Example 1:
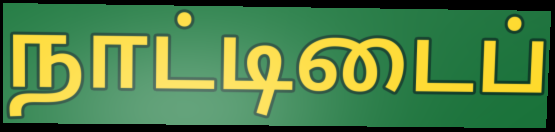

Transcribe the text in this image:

நாட்டிடைப்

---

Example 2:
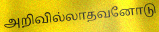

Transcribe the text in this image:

அறிவில்லாதவனோடு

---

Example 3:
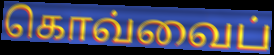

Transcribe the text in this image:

கொவ்வைப்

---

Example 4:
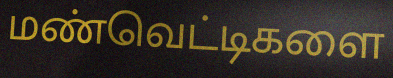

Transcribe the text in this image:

மண்வெட்டிகளை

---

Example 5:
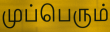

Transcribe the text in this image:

முப்பெரும்